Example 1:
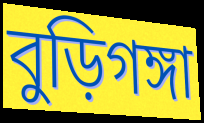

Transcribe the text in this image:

বুড়িগঙ্গা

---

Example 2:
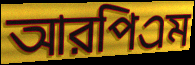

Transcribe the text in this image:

আরপিএম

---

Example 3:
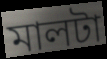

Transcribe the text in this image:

মালটা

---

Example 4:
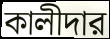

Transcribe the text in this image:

কালীদার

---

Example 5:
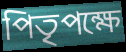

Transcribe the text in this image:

পিতৃপক্ষে